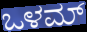
ಒಳಮ್